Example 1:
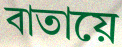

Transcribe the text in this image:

বাতায়ে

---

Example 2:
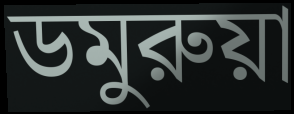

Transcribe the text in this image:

ডমুরুয়া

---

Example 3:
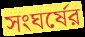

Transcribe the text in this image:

সংঘর্ষের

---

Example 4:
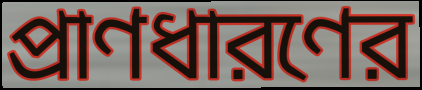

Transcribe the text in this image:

প্রাণধারণের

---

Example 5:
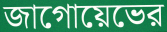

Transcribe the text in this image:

জাগোয়েভের